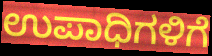
ಉಪಾಧಿಗಳಿಗೆ